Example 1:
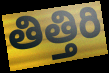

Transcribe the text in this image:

తిత్తిరి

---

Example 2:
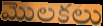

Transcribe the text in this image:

మొలకలు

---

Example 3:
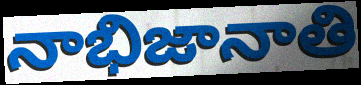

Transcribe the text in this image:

నాభిజానాతి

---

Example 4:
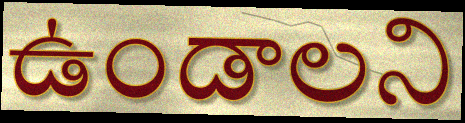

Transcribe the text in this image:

ఉండాలని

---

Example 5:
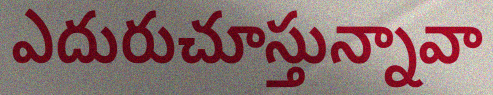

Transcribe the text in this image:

ఎదురుచూస్తున్నావా